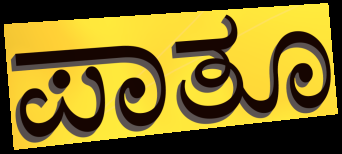
ಪಾತೂ